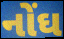
નોંઘ